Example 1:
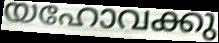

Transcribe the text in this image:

യഹോവക്കു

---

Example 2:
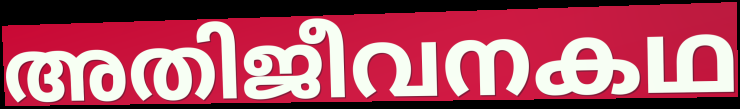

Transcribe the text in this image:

അതിജീവനകഥ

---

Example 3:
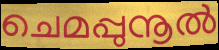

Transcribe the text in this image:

ചെമപ്പുനൂൽ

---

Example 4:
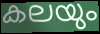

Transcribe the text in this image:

കലയും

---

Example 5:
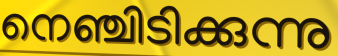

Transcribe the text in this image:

നെഞ്ചിടിക്കുന്നു